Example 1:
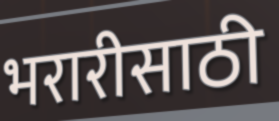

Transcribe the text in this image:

भरारीसाठी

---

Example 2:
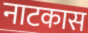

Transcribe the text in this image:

नाटकास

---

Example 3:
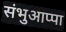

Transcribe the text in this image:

संभुआप्पा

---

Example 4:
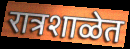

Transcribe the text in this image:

रात्रशाळेत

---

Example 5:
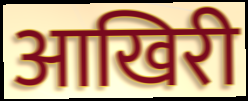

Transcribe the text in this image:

आखिरी